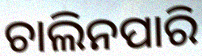
ଚାଲିନପାରି